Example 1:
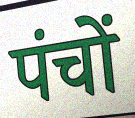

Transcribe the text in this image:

पंचों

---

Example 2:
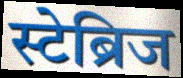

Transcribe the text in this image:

स्टेब्रिज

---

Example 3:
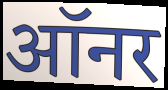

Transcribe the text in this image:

ऑनर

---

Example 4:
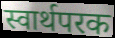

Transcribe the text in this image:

स्वार्थपरक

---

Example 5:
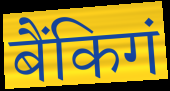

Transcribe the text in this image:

बैंकिगं